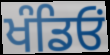
ਖੰਡਿਓਂ